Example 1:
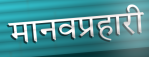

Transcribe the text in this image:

मानवप्रहारी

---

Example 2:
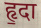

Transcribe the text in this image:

हृ॒दा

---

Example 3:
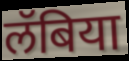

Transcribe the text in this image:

लॅबिया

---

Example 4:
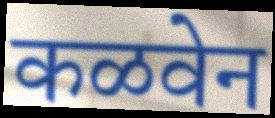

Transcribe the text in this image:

कळवेन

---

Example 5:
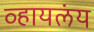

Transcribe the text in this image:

व्हायलंय